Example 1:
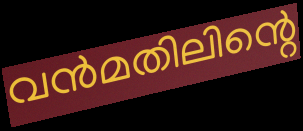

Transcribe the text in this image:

വൻമതിലിന്റെ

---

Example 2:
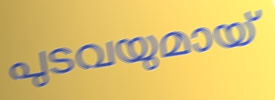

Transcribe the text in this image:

പുടവയുമായ്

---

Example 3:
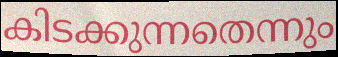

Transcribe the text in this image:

കിടക്കുന്നതെന്നും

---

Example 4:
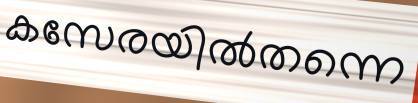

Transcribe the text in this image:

കസേരയിൽതന്നെ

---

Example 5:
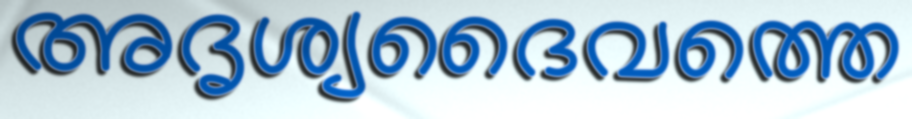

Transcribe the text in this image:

അദൃശ്യദൈവത്തെ